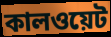
কালওয়েট